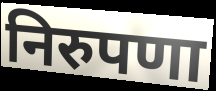
निरुपणा